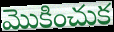
మొకించుక